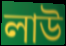
লাউ